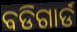
ବଡିଗାର୍ଡ